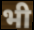
भी